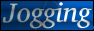
Jogging